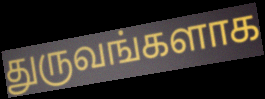
துருவங்களாக